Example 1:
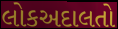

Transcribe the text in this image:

લોકઅદાલતો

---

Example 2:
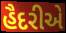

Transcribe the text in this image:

હૈદરીએ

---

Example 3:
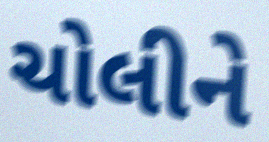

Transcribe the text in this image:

ચોલીને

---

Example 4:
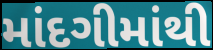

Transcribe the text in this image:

માંદગીમાંથી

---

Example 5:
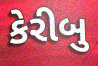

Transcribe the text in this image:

કેરીબુ